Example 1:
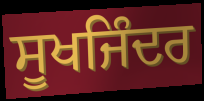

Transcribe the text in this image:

ਸੂਖਜਿੰਦਰ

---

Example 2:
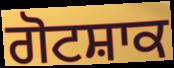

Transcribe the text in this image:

ਗੋਟਸ਼ਾਕ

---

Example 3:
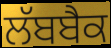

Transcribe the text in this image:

ਲੱਬਬੈਕ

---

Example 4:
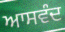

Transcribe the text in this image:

ਆਸਵੰਦ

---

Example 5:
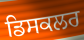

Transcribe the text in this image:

ਡਿਸਕਲਰ